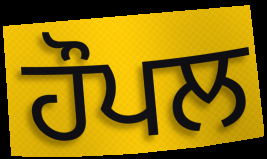
ਹੌਪਲ